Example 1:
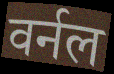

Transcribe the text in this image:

वर्नल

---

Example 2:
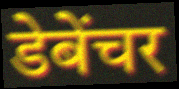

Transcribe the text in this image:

डेबेंचर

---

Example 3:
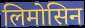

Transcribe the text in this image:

लिमोसिन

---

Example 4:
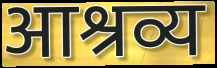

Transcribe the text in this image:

आश्रव्य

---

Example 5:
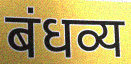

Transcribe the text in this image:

बंधव्य